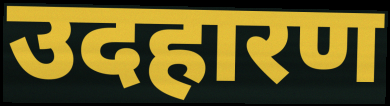
उदहारण